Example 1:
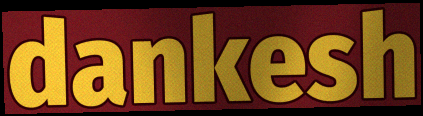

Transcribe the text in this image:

dankesh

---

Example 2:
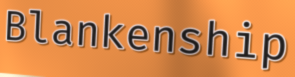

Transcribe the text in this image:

Blankenship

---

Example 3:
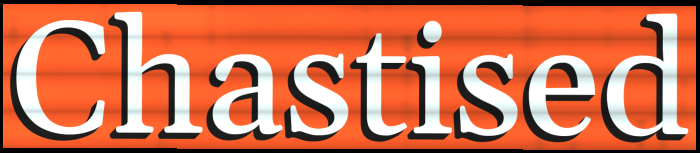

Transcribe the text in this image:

Chastised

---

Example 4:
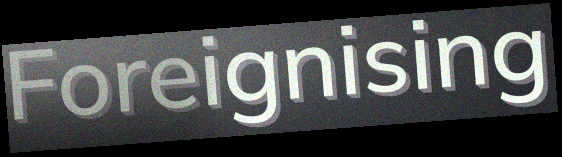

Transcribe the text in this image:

Foreignising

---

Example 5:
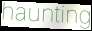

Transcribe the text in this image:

haunting